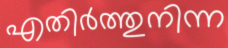
എതിർത്തുനിന്ന